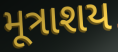
મૂત્રાશય